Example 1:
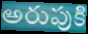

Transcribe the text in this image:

అరుపుకి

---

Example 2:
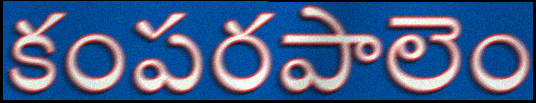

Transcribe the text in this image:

కంపరపాలెం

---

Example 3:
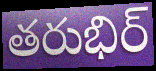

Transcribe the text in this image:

తరుభిర్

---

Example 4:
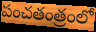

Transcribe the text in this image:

పంచతంత్రంలో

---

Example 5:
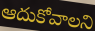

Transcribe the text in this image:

ఆదుకోవాలని